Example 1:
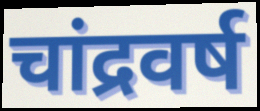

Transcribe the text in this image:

चांद्रवर्ष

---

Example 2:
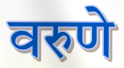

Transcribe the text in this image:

वरुणे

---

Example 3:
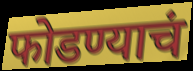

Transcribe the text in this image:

फोडण्याचं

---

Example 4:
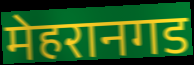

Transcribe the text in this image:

मेहरानगड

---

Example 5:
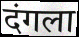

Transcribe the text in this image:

दंगला